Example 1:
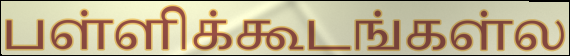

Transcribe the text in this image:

பள்ளிக்கூடங்கள்ல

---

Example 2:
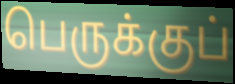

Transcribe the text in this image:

பெருக்குப்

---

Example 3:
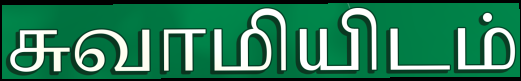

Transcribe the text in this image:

சுவாமியிடம்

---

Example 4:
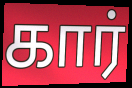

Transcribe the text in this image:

கார்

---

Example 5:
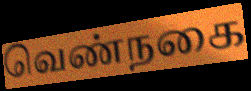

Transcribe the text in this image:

வெண்நகை